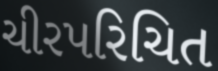
ચીરપરિચિત